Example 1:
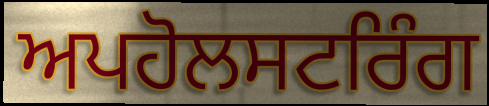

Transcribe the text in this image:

ਅਪਹੋਲਸਟਰਿੰਗ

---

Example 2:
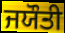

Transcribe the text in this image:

ਜਯੌਤੀ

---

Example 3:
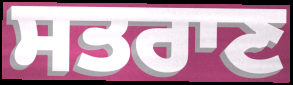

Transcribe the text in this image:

ਸਤਰਾਣ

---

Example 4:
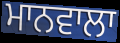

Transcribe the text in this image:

ਮਾਨਵਾਲਾ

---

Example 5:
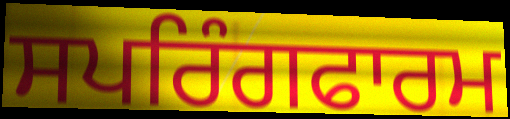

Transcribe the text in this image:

ਸਪਰਿੰਗਫਾਰਮ